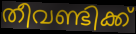
തീവണ്ടിക്ക്